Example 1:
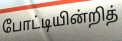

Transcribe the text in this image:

போட்டியின்றித்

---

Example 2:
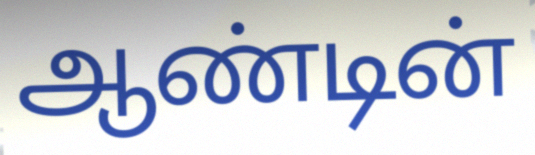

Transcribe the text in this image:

ஆண்டின்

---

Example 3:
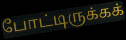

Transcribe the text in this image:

போட்டிருக்கக்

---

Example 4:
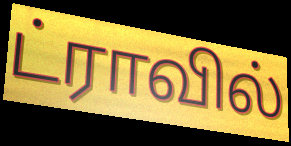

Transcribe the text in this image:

ட்ராவில்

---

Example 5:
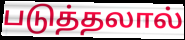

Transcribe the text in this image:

படுத்தலால்